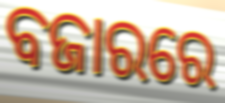
ବଜାରରେ